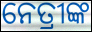
ନେତ୍ରୀଙ୍କ